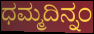
ಧಮ್ಮದಿನ್ನಂ